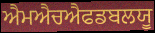
ਐਮਐਚਐਫਡਬਲਯੂ